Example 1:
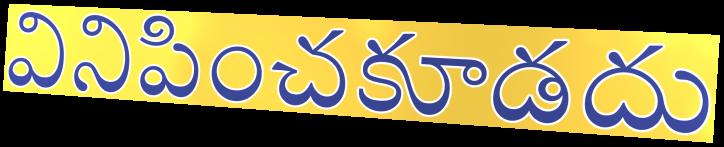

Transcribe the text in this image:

వినిపించకూడదు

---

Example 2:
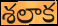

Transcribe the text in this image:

శలాక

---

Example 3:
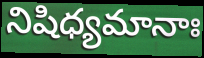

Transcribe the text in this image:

నిషిధ్యమానాః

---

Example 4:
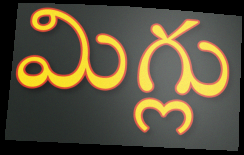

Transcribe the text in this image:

మిగ్లు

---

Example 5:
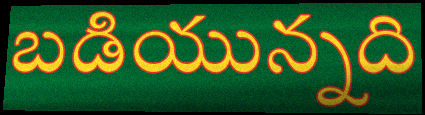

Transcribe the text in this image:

బడియున్నది